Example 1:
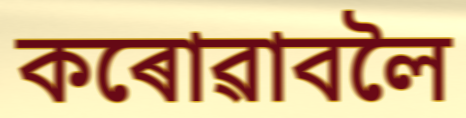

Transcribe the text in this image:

কৰোৱাবলৈ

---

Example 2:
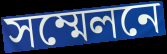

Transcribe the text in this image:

সম্মেলনে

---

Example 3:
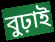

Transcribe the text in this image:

বুঢ়াই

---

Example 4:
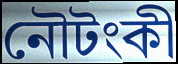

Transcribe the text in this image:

নৌটংকী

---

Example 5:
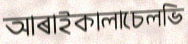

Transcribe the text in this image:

আৰাইকালাচেলভি